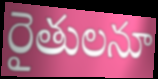
రైతులనూ